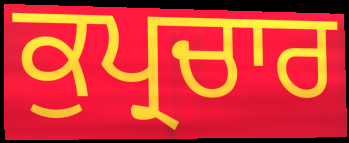
ਕੁਪ੍ਰਚਾਰ